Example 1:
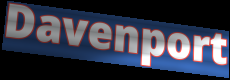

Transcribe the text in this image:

Davenport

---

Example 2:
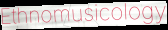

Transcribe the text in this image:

Ethnomusicology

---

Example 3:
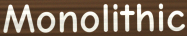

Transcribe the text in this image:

Monolithic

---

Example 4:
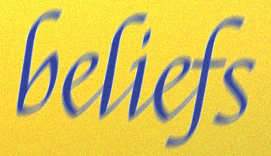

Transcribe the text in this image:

beliefs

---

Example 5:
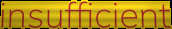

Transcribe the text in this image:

insufficient